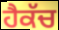
ਹੈਕੱਚ